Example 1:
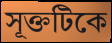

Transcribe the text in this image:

সূক্তটিকে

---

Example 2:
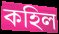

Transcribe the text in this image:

কহিল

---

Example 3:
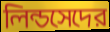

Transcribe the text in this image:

লিন্ডসেদের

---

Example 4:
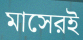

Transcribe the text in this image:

মাসেরই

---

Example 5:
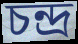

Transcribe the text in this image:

চন্দ্র